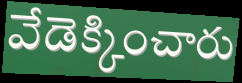
వేడెక్కించారు